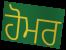
ਹੋਮਰ